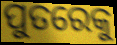
ପୁତରେକୁ